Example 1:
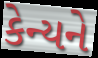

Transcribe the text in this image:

કેન્યને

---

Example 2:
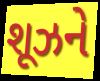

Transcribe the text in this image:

શૂઝને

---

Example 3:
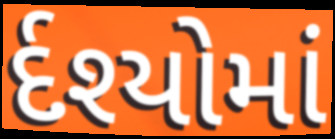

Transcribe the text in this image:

ર્દશ્યોમાં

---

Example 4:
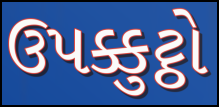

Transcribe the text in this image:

ઉપક્કુટ્ઠો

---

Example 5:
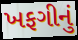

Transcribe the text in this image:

ખફગીનું